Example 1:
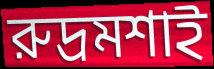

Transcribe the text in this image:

রুদ্রমশাই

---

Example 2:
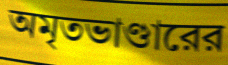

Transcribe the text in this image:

অমৃতভাণ্ডারের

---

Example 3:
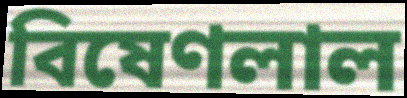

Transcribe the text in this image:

বিষেণলাল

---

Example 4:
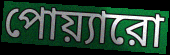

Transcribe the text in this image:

পোয়্যারো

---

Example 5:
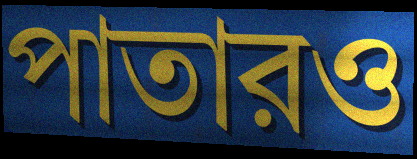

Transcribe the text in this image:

পাতারও